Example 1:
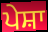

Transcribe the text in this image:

ਪੇਸ਼ਾ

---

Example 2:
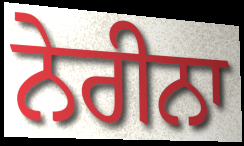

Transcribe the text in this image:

ਨੇਰੀਨਾ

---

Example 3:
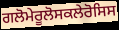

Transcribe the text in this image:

ਗਲੋਮੇਰੂਲੋਸਕਲੇਰੋਸਿਸ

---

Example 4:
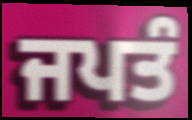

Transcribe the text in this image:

ਜਪਤੰ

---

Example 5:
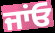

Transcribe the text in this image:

ਜਾਂਓ